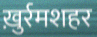
ख़ुर्रमशहर